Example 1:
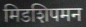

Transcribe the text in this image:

मिडशिपमन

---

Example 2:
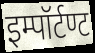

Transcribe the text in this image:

इम्पॉर्टण्ट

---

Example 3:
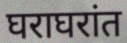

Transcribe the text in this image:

घराघरांत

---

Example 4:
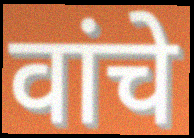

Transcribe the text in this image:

वांचे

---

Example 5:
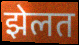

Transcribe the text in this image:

झेलत